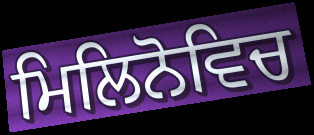
ਮਿਲਿਨੋਵਿਚ